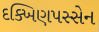
દક્ખિણપસ્સેન